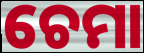
ଚେମା